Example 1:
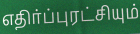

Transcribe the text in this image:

எதிர்ப்புரட்சியும்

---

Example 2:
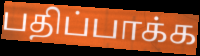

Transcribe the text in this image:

பதிப்பாக்க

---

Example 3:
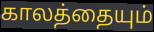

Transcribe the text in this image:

காலத்தையும்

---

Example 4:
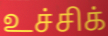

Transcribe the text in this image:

உச்சிக்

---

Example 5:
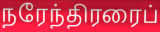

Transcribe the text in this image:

நரேந்திரரைப்